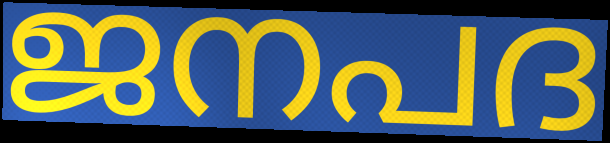
ജനപദ